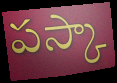
పస్కా